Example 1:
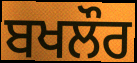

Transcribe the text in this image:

ਬਖਲੌਰ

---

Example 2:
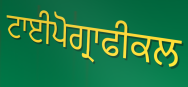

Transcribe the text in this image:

ਟਾਈਪੋਗ੍ਰਾਫੀਕਲ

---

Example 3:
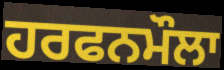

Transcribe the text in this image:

ਹਰਫਨਮੌਲਾ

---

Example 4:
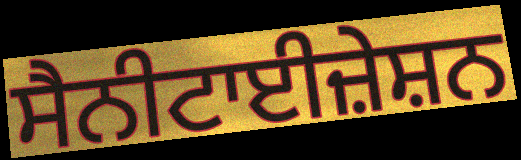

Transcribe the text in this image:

ਸੈਨੀਟਾਈਜ਼ੇਸ਼ਨ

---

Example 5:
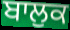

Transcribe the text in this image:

ਬਾਲੁਕ